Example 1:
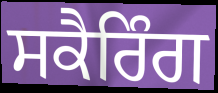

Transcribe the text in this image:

ਸਕੈਰਿੰਗ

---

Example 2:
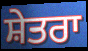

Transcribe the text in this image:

ਸ਼ੇਤਰਾ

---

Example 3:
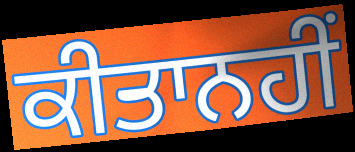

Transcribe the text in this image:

ਕੀਤਾਨਹੀਂ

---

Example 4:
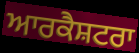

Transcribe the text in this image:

ਆਰਕੈਸ਼ਟਰਾ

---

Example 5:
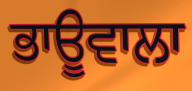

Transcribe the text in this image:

ਭਾਊਵਾਲਾ